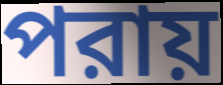
পরায়